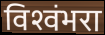
विश्वंभरा